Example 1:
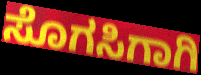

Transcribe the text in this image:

ಸೊಗಸಿಗಾಗಿ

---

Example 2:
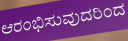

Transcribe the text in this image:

ಆರಂಭಿಸುವುದರಿಂದ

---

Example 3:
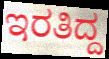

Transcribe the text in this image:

ಇರತಿದ್ದ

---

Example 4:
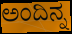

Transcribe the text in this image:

ಅಂದಿನ್ನ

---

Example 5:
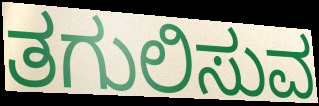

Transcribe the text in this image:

ತಗುಲಿಸುವ